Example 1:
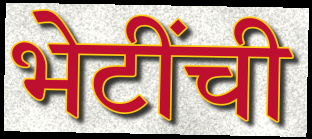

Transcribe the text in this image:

भेटींची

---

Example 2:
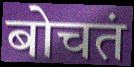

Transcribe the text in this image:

बोचतं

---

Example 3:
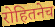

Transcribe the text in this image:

रोहितनेच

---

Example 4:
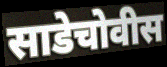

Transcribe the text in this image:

साडेचोवीस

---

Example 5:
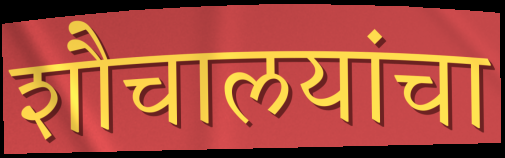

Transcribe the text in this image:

शौचालयांचा